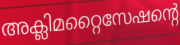
അക്ലിമറ്റൈസേഷന്റെ